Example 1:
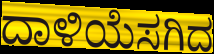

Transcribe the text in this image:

ದಾಳಿಯೆಸಗಿದ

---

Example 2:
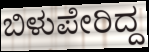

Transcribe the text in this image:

ಬಿಳುಪೇರಿದ್ದ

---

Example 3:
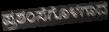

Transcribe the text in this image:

ಪ್ರಶಂಸೆಗೊಳಗಾದ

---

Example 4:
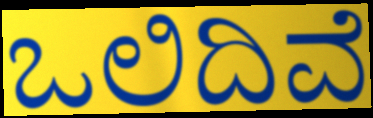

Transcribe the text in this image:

ಒಲಿದಿವೆ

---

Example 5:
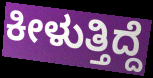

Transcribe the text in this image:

ಕೀಳುತ್ತಿದ್ದೆ